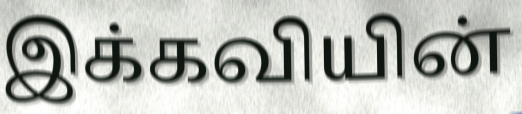
இக்கவியின்